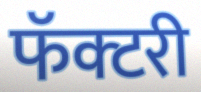
फॅक्‍टरी